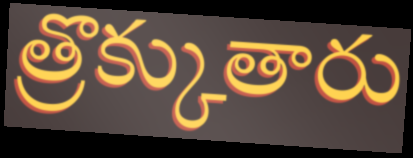
త్రొక్కుతారు